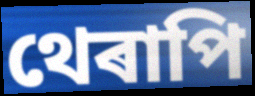
থেৰাপি